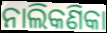
ନାଲିକଣିକା